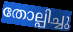
തോല്പിച്ചു